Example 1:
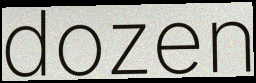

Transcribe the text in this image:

dozen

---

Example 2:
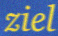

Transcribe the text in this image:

ziel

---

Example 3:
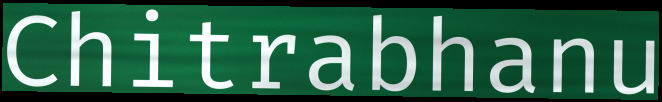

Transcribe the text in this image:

Chitrabhanu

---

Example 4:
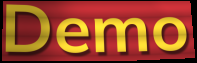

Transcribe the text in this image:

Demo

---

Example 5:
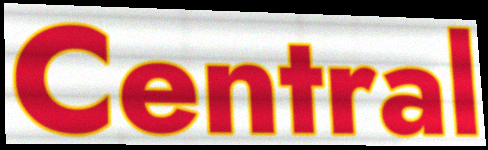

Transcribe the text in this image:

Central